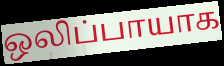
ஒலிப்பாயாக